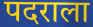
पदराला